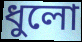
ধুলো